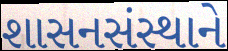
શાસનસંસ્થાને